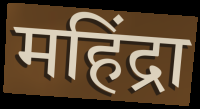
महिंद्रा